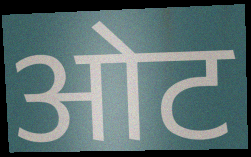
ओट